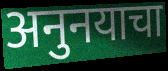
अनुनयाचा